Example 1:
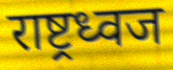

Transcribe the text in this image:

राष्ट्रध्वज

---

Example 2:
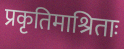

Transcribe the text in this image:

प्रकृतिमाश्रिताः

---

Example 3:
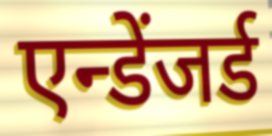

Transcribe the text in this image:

एन्डेंजर्ड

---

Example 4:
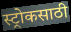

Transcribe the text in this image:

स्ट्रोकसाठी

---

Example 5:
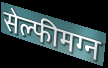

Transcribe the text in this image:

सेल्फीमग्न